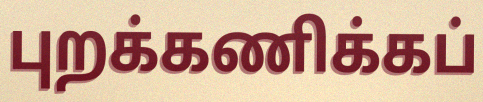
புறக்கணிக்கப்